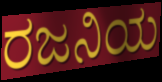
ರಜನಿಯ